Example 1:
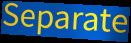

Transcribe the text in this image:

Separate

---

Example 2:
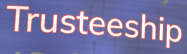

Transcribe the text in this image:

Trusteeship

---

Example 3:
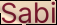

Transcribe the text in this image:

Sabi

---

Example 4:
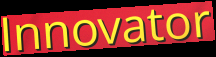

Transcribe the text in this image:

Innovator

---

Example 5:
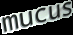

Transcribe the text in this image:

mucus